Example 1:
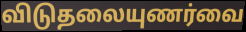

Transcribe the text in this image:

விடுதலையுணர்வை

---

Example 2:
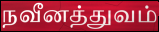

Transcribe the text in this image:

நவீனத்துவம்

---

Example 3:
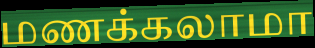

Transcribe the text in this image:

மணக்கலாமா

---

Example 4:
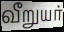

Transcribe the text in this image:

வீறுயர்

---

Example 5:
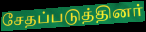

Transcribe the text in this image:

சேதப்படுத்தினர்